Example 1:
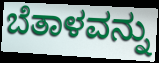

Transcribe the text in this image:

ಬೆತಾಳವನ್ನು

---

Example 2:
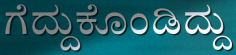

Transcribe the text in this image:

ಗೆದ್ದುಕೊಂಡಿದ್ದು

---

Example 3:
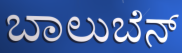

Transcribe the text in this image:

ಬಾಲುಬೆನ್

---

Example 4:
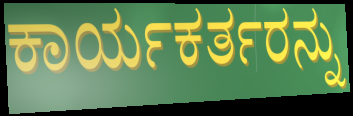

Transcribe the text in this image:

ಕಾರ್ಯಕರ್ತರನ್ನು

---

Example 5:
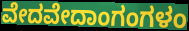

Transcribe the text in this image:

ವೇದವೇದಾಂಗಂಗಳಂ